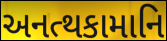
અનત્થકામાનિ